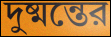
দুষ্মন্তের